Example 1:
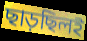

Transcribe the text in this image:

ছাড়ছিলই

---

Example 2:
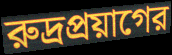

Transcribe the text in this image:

রুদ্রপ্রয়াগের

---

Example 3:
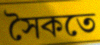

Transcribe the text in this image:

সৈকতে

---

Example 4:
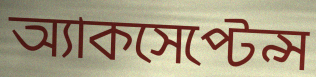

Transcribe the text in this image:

অ্যাকসেপ্টেন্স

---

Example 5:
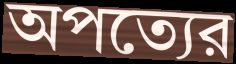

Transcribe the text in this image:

অপত্যের